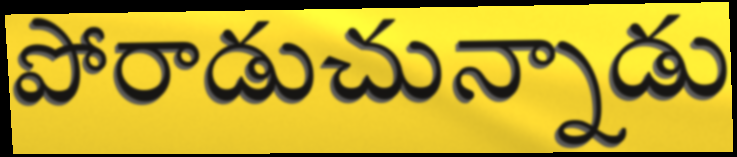
పోరాడుచున్నాడు